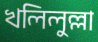
খলিলুল্লা